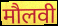
मौलवी